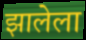
झालेला